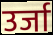
उर्जा